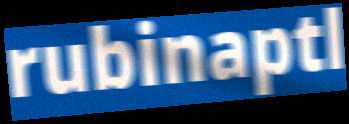
rubinaptl